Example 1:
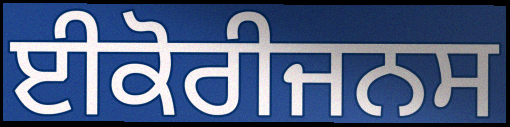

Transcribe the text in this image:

ਈਕੋਰੀਜਨਸ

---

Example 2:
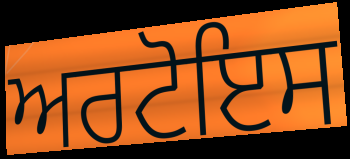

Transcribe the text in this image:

ਅਰਟੋਇਸ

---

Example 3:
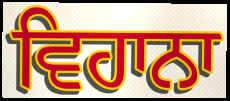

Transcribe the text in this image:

ਵਿਹਾਨਾ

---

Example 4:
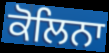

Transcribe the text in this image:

ਕੋਲਿਨਾ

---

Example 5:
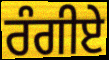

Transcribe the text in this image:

ਰੰਗੀਏ